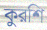
কুরশি